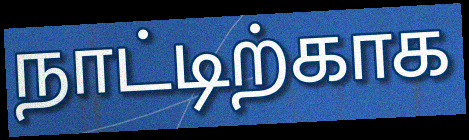
நாட்டிற்காக